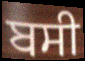
ਬਸੀ